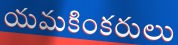
యమకింకరులు